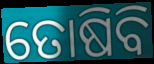
ତୋଷିବି